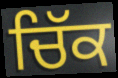
ਚਿੱਕ